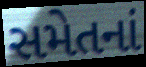
સમેતનાં